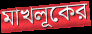
মাখলূকের